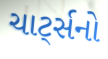
ચાર્ટ્સનો